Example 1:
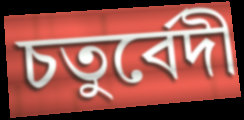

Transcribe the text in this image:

চতুৰ্বেদী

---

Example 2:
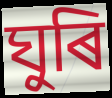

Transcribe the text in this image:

ঘুৰি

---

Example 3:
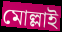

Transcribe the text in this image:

মোল্লাই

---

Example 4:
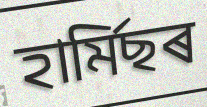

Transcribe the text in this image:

হাৰ্মিছৰ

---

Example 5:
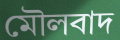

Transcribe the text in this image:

মৌলবাদ